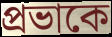
প্রভাকে